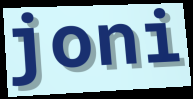
joni